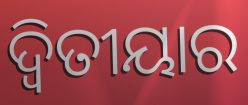
ଦ୍ଵିତୀୟାର